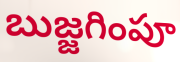
బుజ్జగింపూ